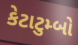
કેટાટુમ્બો